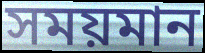
সময়মান